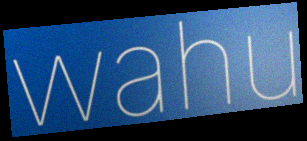
wahu